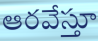
ఆరవేస్తూ